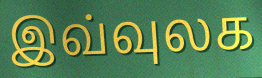
இவ்வுலக